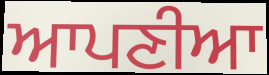
ਆਪਣੀਆ